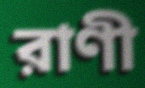
রাণী